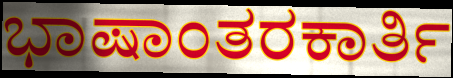
ಭಾಷಾಂತರಕಾರ್ತಿ